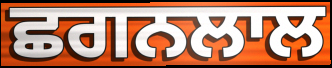
ਛਗਨਲਾਲ